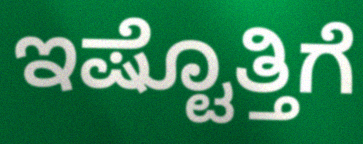
ಇಷ್ಟೊತ್ತಿಗೆ